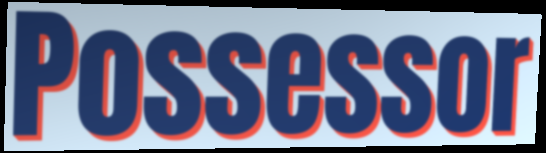
Possessor